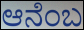
ಆನೆಂಬ